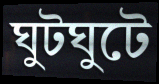
ঘুটঘুটে